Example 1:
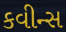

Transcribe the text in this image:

કવીન્સ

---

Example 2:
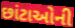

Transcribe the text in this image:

છાંટાઓની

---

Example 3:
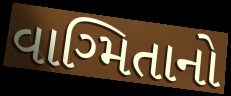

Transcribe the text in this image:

વાગ્મિતાનો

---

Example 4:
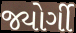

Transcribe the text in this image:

જ્યોર્ગી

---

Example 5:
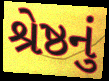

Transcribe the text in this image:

શ્રેષ્ઠનું